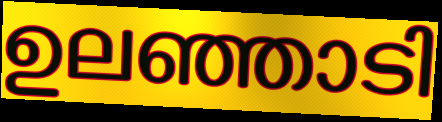
ഉലഞ്ഞാടി